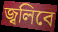
জ্বলিবে